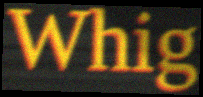
Whig